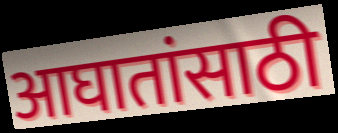
आघातांसाठी